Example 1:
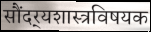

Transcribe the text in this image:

सौंदर्यशास्त्रविषयक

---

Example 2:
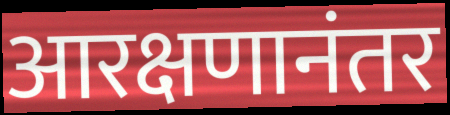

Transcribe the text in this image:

आरक्षणानंतर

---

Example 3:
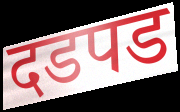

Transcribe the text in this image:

दडपड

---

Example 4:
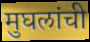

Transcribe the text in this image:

मुघलांची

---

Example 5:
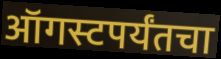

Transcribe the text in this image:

ऑगस्टपर्यंतचा